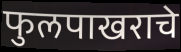
फुलपाखराचे